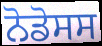
ਨੋਡੋਸਸ